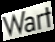
Wart